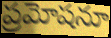
ప్రమోషనూ